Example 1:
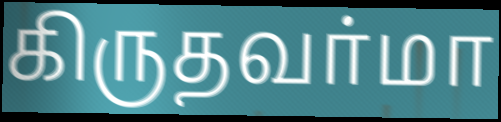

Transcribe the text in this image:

கிருதவர்மா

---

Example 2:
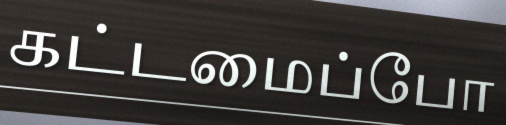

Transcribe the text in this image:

கட்டமைப்போ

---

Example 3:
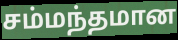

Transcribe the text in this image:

சம்மந்தமான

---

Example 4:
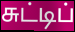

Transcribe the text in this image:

சுட்டிப்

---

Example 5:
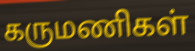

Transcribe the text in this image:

கருமணிகள்